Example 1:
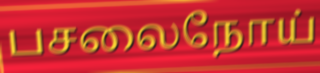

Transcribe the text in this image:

பசலைநோய்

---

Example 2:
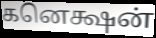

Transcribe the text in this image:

கனெக்ஷன்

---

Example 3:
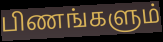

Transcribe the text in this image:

பிணங்களும்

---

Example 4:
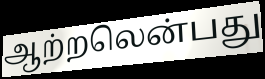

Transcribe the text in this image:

ஆற்றலென்பது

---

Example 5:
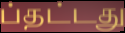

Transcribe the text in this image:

ப்தட்டது